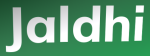
Jaldhi